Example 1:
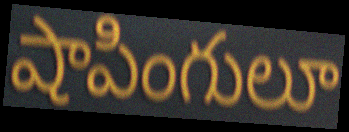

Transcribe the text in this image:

షాపింగులూ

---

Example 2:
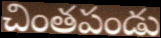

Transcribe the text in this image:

చింతపండు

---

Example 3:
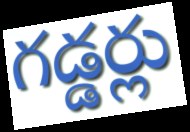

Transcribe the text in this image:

గడ్డర్లు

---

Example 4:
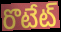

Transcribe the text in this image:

రొటేట్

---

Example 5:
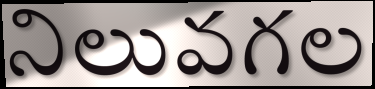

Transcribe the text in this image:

నిలువగల